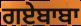
ਗਏਬਾਬਾ